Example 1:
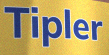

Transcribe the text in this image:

Tipler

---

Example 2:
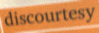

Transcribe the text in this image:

discourtesy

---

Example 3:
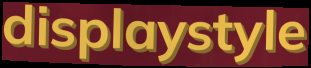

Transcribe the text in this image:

displaystyle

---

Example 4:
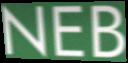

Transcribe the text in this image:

NEB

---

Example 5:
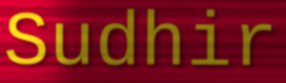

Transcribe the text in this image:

Sudhir